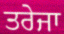
ਤਰੇਜਾ